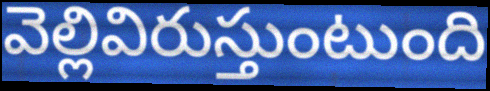
వెల్లివిరుస్తుంటుంది